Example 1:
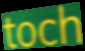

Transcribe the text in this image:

toch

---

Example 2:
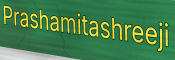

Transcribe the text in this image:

Prashamitashreeji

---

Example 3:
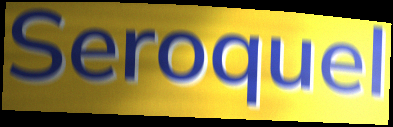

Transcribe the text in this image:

Seroquel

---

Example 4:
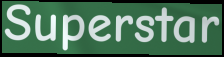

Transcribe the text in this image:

Superstar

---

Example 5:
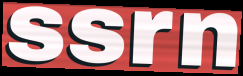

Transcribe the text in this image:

ssrn